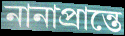
নানাপ্রান্তে